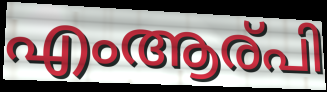
എംആര്പി